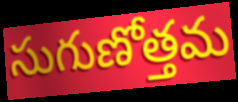
సుగుణోత్తమ